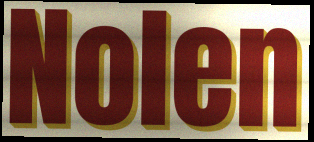
Nolen